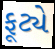
ફૂટ્યે